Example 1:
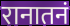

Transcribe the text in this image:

रानातनं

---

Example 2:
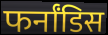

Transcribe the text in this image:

फर्नांडिस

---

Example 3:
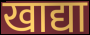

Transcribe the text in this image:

खाद्या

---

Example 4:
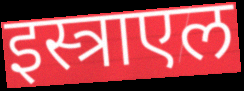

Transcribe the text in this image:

इस्त्राएल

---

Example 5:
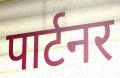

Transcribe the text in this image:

पार्टनर